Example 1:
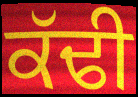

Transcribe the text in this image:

ਕੱਢੀ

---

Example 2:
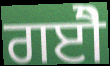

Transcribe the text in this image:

ਗਈੈ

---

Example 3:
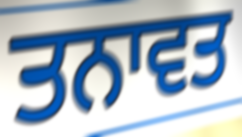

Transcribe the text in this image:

ਤਨਾਵਤ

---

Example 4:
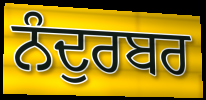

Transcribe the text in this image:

ਨੰਦੁਰਬਰ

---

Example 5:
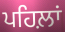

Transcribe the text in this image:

ਪਹਿਲ਼ਾਂ